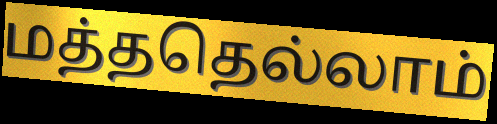
மத்ததெல்லாம்